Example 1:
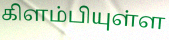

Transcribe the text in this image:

கிளம்பியுள்ள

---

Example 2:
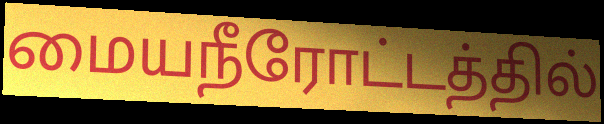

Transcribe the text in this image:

மையநீரோட்டத்தில்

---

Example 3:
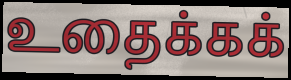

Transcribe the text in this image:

உதைக்கக்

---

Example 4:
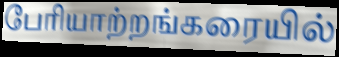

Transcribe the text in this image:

பேரியாற்றங்கரையில்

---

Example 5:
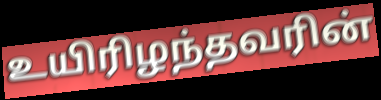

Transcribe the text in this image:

உயிரிழந்தவரின்